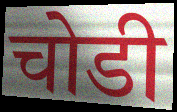
चोडी